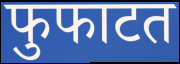
फुफाटत